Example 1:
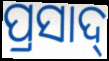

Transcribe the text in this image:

ପ୍ରସାଦ୍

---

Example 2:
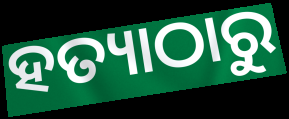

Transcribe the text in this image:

ହତ୍ୟାଠାରୁ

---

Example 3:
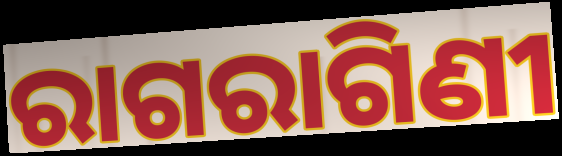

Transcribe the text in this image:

ରାଗରାଗିଣୀ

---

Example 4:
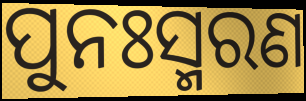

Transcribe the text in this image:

ପୁନଃସ୍ମରଣ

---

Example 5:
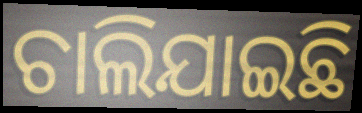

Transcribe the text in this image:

ଚାଲିଯାଇଛି